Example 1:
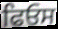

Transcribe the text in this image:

ਫਿਓਸ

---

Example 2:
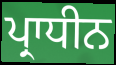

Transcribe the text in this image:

ਪ੍ਰਾਧੀਨ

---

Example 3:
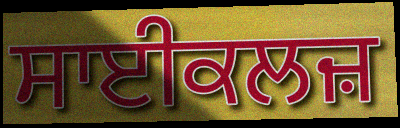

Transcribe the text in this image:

ਸਾਈਕਲਜ਼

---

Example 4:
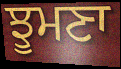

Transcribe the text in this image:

ਝੂਮਣਾ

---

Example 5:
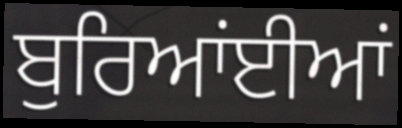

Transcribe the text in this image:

ਬੁਰਿਆਂਈਆਂ